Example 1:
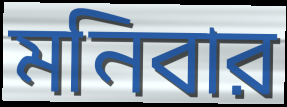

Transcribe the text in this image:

মনিবার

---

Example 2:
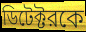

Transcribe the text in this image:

ডিটেক্টরকে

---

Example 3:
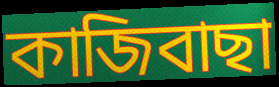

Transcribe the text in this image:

কাজিবাছা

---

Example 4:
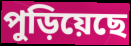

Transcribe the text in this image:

পুড়িয়েছে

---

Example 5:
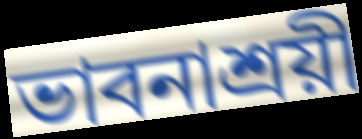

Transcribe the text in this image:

ভাবনাশ্রয়ী